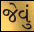
જેવું